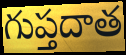
గుప్తదాత